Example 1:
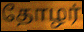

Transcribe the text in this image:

தோழர்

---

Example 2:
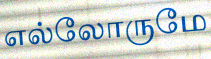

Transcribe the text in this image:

எல்லோருமே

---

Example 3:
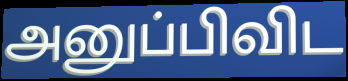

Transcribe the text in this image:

அனுப்பிவிட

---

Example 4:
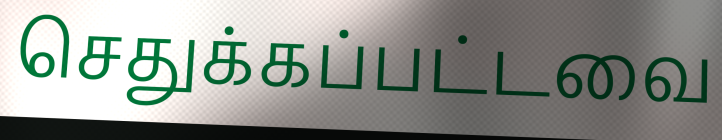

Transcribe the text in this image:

செதுக்கப்பட்டவை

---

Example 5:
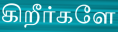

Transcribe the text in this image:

கிறீர்களே